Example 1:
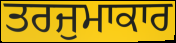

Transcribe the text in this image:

ਤਰਜੁਮਾਕਾਰ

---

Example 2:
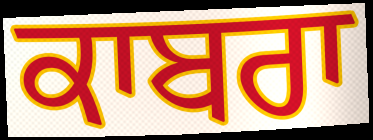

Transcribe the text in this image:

ਕਾਬਰਾ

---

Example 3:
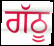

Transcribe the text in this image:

ਗੱਠੂ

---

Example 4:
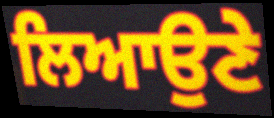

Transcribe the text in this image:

ਲਿਆਉਣੇ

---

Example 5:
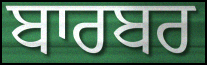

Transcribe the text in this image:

ਬਾਰਬਰ